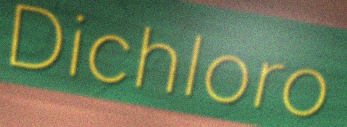
Dichloro